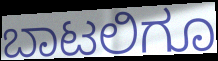
ಬಾಟಲಿಗೂ